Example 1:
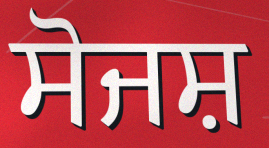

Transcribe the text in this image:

ਸੋਜਸ਼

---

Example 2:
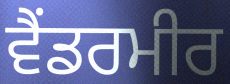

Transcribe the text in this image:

ਵੈਂਡਰਮੀਰ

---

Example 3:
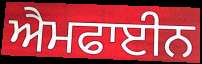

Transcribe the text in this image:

ਐਮਫਾਈਨ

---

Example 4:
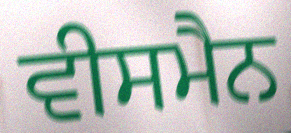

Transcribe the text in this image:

ਵੀਸਮੈਨ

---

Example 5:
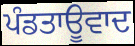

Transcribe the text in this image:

ਪੰਡਤਾਊਵਾਦ